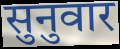
सुनुवार